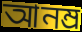
আনম্র